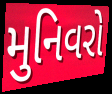
મુનિવરો